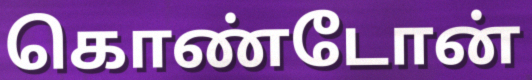
கொண்டோன்